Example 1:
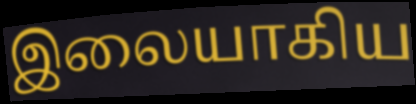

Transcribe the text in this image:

இலையாகிய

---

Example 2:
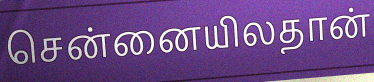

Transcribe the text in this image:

சென்னையிலதான்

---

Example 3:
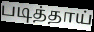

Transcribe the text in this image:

படித்தாய்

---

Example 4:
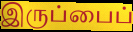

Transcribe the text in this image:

இருப்பைப்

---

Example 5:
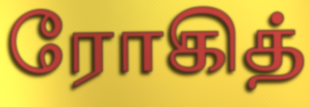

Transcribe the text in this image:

ரோகித்